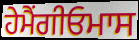
ਹੇਮੈਂਗੀਓਮਾਸ